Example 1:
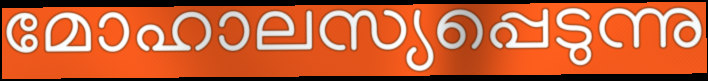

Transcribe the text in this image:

മോഹാലസ്യപ്പെടുന്നു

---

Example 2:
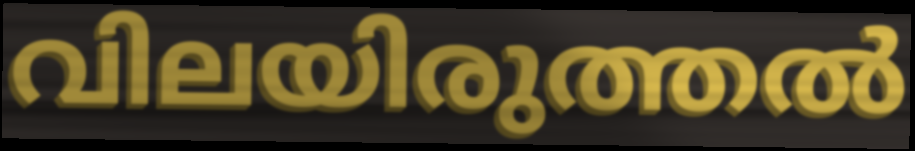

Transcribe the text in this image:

വിലയിരുത്തൽ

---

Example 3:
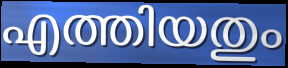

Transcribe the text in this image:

എത്തിയതും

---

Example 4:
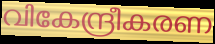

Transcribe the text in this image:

വികേന്ദ്രീകരണ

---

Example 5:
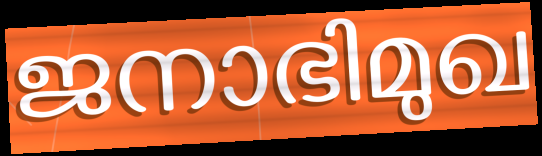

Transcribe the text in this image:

ജനാഭിമുഖ